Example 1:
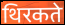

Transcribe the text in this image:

थिरकते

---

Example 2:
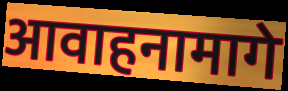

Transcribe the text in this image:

आवाहनामागे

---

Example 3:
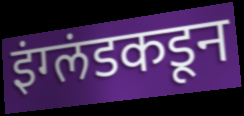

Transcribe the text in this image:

इंग्लंडकडून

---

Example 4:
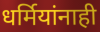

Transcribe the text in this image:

धर्मियांनाही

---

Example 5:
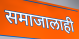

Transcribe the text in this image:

समाजालाही